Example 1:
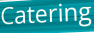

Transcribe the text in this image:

Catering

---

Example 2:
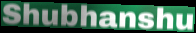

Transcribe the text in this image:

Shubhanshu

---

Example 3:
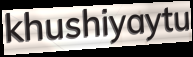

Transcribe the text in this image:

khushiyaytu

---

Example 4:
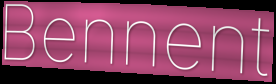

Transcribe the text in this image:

Bennent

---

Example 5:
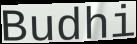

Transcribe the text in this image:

Budhi